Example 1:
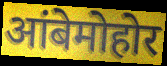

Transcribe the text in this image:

आंबेमोहोर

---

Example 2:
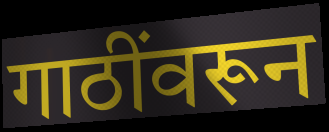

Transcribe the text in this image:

गाठींवरून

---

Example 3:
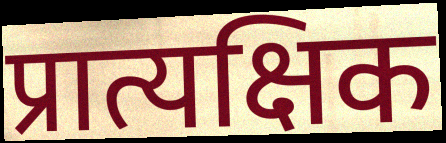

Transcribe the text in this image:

प्रात्यक्षिक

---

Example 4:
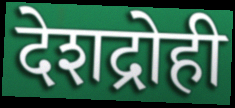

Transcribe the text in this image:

देशद्रोही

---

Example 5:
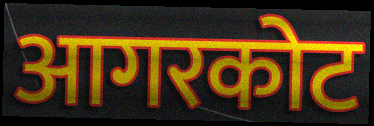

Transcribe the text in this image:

आगरकोट